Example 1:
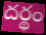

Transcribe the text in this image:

దర్థం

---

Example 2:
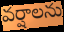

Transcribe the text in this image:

వర్షాలను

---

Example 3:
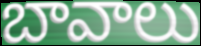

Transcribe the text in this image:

బావాలు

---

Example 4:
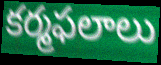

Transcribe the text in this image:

కర్మఫలాలు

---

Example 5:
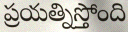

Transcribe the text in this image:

ప్రయత్నిస్తోంది